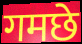
गमछे